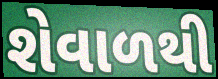
શેવાળથી